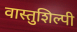
वास्तुशिल्पी